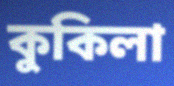
কুকিলা